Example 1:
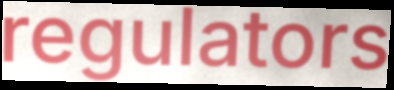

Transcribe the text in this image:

regulators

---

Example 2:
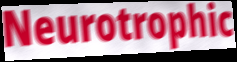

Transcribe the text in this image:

Neurotrophic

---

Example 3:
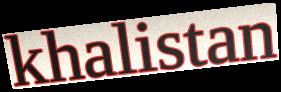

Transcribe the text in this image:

khalistan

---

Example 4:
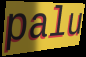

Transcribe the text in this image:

palu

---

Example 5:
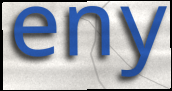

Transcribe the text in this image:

eny